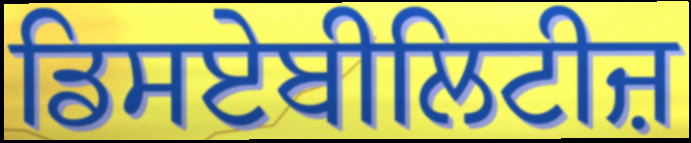
ਡਿਸਏਬੀਲਿਟੀਜ਼